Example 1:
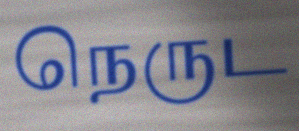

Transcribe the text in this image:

நெருட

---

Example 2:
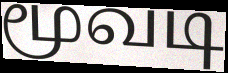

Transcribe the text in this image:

மூவடி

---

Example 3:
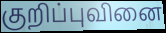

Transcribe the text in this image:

குறிப்புவினை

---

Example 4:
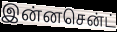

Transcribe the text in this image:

இன்னசென்ட்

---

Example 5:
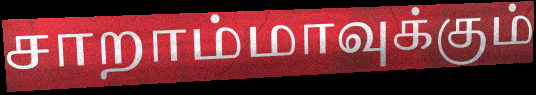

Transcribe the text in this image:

சாறாம்மாவுக்கும்